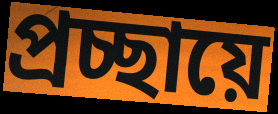
প্রচ্ছায়ে